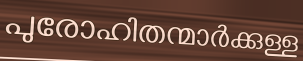
പുരോഹിതന്മാർക്കുള്ള